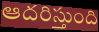
ఆదరిస్తుంది